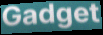
Gadget